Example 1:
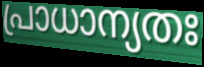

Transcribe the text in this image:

പ്രാധാന്യതഃ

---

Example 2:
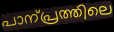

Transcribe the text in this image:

പാന്പ്രത്തിലെ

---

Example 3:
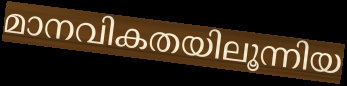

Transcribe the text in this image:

മാനവികതയിലൂന്നിയ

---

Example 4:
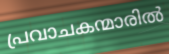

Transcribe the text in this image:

പ്രവാചകന്മാരിൽ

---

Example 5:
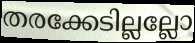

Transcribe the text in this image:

തരക്കേടില്ലല്ലോ